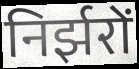
निर्झरों